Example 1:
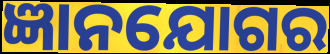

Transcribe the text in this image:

ଜ୍ଞାନଯୋଗର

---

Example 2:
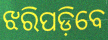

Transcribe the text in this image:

ଝରିପଡ଼ିବେ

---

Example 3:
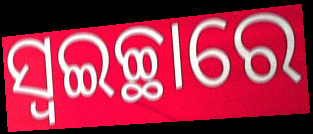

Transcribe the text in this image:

ସ୍ଵଇଚ୍ଛାରେ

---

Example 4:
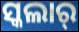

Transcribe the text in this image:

ସ୍କଲାର୍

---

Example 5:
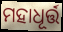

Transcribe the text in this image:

ମହାଧୂର୍ତ୍ତ